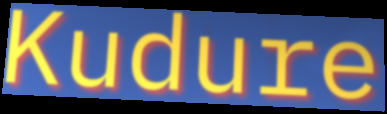
Kudure